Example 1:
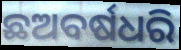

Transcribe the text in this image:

ଛଅବର୍ଷଧରି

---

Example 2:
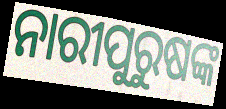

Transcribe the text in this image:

ନାରୀପୁରୁଷଙ୍କ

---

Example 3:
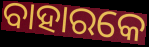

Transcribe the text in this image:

ବାହାରକେ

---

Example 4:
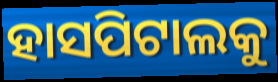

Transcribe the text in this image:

ହାସପିଟାଲକୁ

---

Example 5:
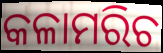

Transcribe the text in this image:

କଳାମରିଚ